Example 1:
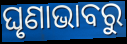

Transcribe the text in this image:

ଘୃଣାଭାବରୁ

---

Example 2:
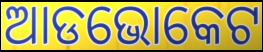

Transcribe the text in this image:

ଆଡଭୋକେଟ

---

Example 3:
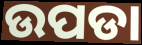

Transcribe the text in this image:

ଉପଡା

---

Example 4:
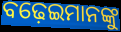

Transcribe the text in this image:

ବଢ଼େଇମାନଙ୍କୁ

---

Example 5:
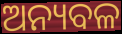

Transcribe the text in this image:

ଅନ୍ୟବଳ